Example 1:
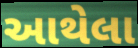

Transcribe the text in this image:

આથેલા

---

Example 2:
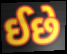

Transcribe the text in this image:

ઈછે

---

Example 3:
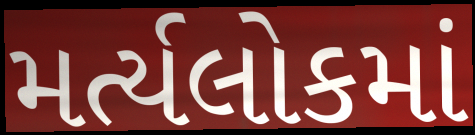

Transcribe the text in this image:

મર્ત્યલોકમાં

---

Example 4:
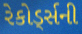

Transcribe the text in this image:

રેકોર્ડ્સની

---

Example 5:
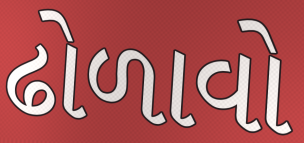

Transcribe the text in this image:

ઢોળાવો